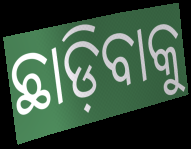
ଛାଡ଼ିବାକୁ